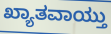
ಖ್ಯಾತವಾಯ್ತು